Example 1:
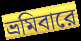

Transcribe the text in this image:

ভ্রমিবারে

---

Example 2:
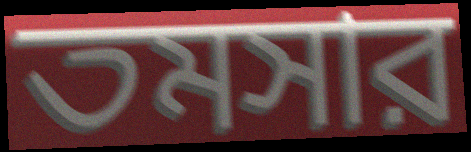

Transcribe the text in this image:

তমসার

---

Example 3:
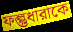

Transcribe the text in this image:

ফল্গুধারাকে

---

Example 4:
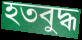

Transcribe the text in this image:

হতবুদ্ধ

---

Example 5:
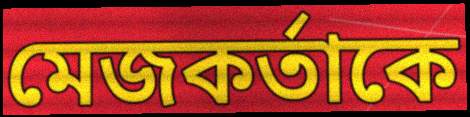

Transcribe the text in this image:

মেজকর্তাকে